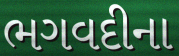
ભગવદીના